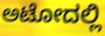
ಅಟೋದಲ್ಲಿ